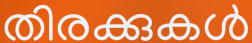
തിരക്കുകൾ